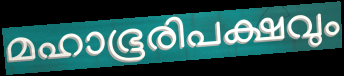
മഹാഭൂരിപക്ഷവും